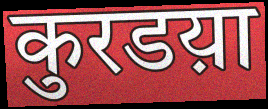
कुरडय़ा